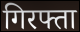
गिरफ्ता